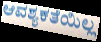
ಆವಶ್ಯಕತೆಯಿಲ್ಲ